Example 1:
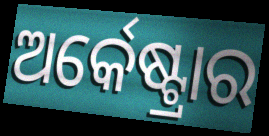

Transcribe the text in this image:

ଅର୍କେଷ୍ଟ୍ରାର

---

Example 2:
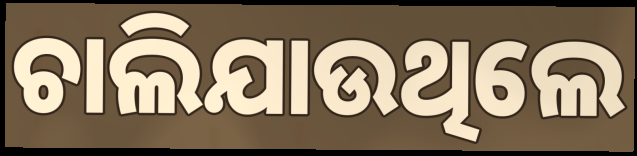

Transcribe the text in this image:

ଚାଲିଯାଉଥିଲେ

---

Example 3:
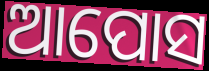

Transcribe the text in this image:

ଆପୋସ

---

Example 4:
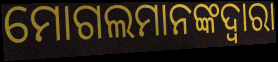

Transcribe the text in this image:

ମୋଗଲମାନଙ୍କଦ୍ୱାରା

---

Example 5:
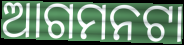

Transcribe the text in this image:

ଆଗମନଟା